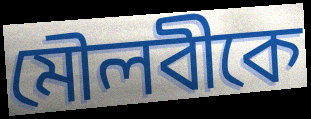
মৌলবীকে